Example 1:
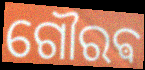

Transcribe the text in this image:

ଗୌରଵ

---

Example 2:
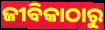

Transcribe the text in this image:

ଜୀବିକାଠାରୁ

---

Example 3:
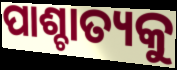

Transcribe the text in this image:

ପାଶ୍ଚାତ୍ୟକୁ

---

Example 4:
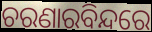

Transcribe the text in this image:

ଚରଣାରବିନ୍ଦରେ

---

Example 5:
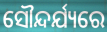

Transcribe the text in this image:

ସୌନ୍ଦର୍ଯ୍ୟରେ